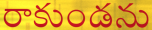
రాకుండను